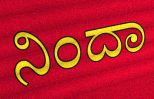
ನಿಂದಾ